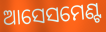
ଆସେସମେଣ୍ଟ